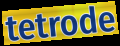
tetrode